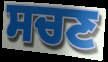
ਸਚਣ